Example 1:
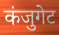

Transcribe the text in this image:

कंजुगेट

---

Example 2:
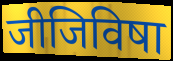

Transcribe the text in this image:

जीजिविषा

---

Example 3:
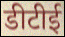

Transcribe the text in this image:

डीटीई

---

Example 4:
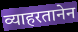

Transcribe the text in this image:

व्याहरतानेन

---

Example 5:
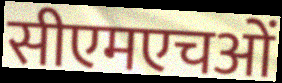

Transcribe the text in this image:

सीएमएचओं